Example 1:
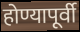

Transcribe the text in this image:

होण्यापूर्वी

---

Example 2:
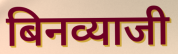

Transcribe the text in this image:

बिनव्याजी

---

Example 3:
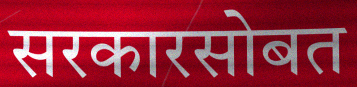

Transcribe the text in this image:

सरकारसोबत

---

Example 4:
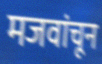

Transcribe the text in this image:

मजवांचून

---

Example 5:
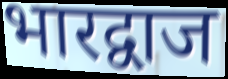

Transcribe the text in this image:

भारद्वाज